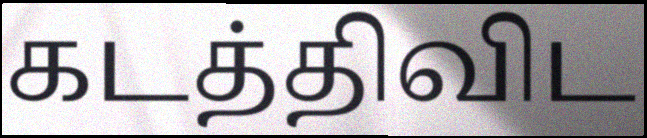
கடத்திவிட